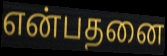
என்பதனை